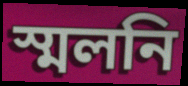
স্মলনি